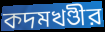
কদমখণ্ডীর